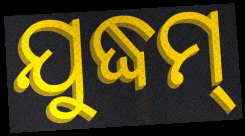
ଯୁଦ୍ଧମ୍